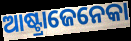
ଆଷ୍ଟ୍ରାଜେନେକା